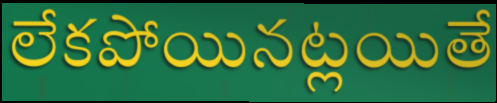
లేకపోయినట్లయితే